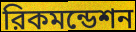
রিকমন্ডেশন